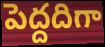
పెద్దదిగా